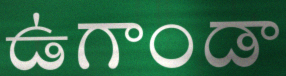
ఉగాండా